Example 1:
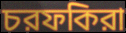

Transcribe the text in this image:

চরফকিরা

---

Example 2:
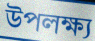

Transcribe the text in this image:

উপলক্ষ্য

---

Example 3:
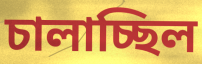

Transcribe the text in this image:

চালাচ্ছিল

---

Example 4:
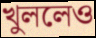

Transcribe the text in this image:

খুললেও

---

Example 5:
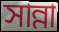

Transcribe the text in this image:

সান্না